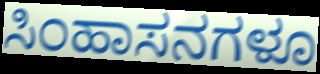
ಸಿಂಹಾಸನಗಳೂ